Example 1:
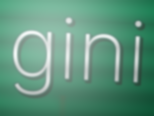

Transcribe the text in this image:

gini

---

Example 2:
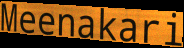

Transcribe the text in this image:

Meenakari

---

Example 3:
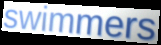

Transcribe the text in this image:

swimmers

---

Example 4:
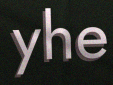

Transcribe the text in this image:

yhe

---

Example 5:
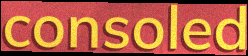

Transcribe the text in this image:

consoled